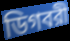
ডিগবরী